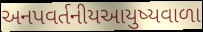
અનપવર્તનીયઆયુષ્યવાળા